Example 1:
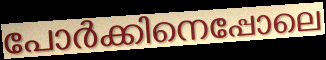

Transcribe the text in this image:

പോർക്കിനെപ്പോലെ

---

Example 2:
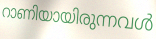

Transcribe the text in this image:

റാണിയായിരുന്നവൾ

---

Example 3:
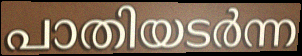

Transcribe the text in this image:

പാതിയടർന്ന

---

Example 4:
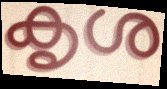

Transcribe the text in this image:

കൃശ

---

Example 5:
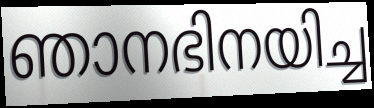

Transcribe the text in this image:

ഞാനഭിനയിച്ച